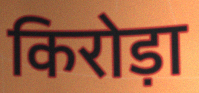
किरोड़ा